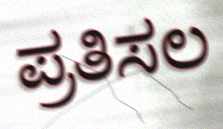
ಪ್ರತಿಸಲ